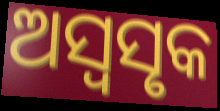
ଅସ୍ୱସୃକ